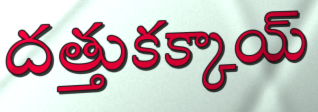
దత్తుకక్కాయ్